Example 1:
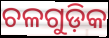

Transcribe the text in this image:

ଚଳଗୁଡ଼ିକ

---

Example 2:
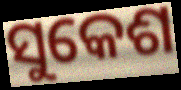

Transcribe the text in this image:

ସୁକେଶ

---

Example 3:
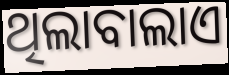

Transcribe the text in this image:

ଥିଲାବାଲାଏ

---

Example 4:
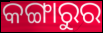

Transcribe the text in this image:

କଙ୍ଗାରୁର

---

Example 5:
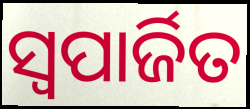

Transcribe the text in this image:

ସ୍ଵପାର୍ଜିତ